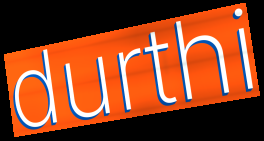
durthi